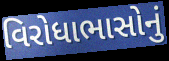
વિરોધાભાસોનું